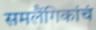
समलैंगिकांचं